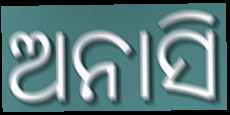
ଅନାସି